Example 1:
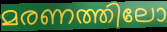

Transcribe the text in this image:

മരണത്തിലോ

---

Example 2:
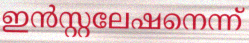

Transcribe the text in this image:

ഇൻസ്റ്റലേഷനെന്ന്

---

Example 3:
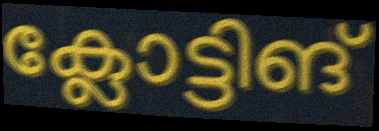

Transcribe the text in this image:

ക്ലോട്ടിങ്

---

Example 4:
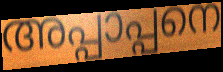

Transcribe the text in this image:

അപ്പാപ്പനെ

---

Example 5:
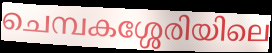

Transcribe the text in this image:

ചെമ്പകശ്ശേരിയിലെ